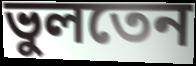
ভুলতেন